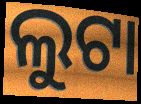
ଲୁଟା